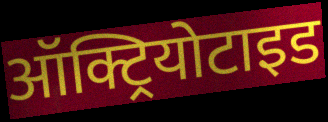
ऑक्ट्रियोटाइड